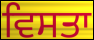
ਵਿਸਤਾ